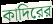
কাদিরের